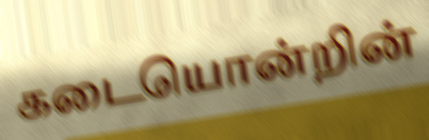
கடையொன்றின்